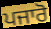
ਪਜਾਰੋ